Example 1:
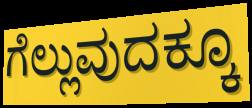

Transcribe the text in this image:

ಗೆಲ್ಲುವುದಕ್ಕೂ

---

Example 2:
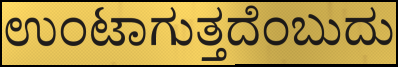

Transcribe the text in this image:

ಉಂಟಾಗುತ್ತದೆಂಬುದು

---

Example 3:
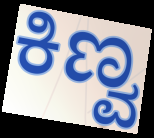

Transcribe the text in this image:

ಕಿಣ್ವ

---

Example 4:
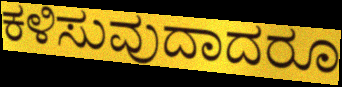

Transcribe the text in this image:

ಕಳಿಸುವುದಾದರೂ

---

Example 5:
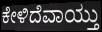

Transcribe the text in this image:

ಕೇಳಿದೆವಾಯ್ತು